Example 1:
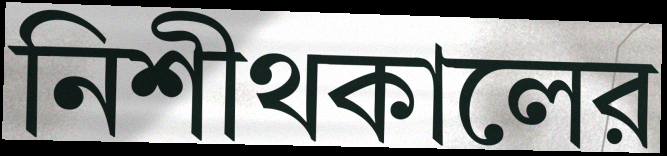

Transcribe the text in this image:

নিশীথকালের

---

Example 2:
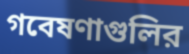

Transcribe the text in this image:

গবেষণাগুলির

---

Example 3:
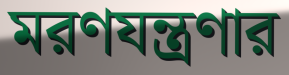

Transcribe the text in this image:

মরণযন্ত্রণার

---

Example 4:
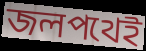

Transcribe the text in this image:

জলপথেই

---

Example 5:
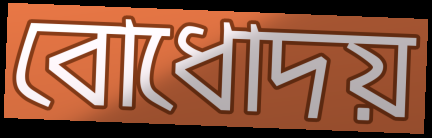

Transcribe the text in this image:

বোধোদয়